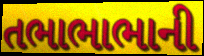
તભાભાભાની